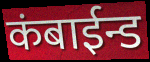
कंबाईन्ड